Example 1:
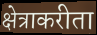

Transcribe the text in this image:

क्षेत्राकरीता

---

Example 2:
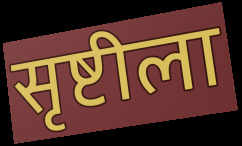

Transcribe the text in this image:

सृष्टीला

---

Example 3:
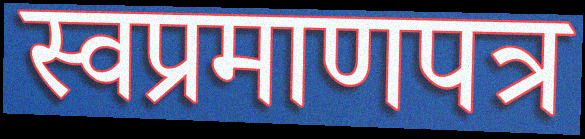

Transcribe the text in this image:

स्वप्रमाणपत्र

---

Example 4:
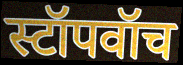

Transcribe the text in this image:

स्टॉपवॉच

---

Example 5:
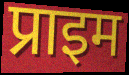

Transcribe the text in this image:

प्राइम